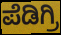
ಪೆಡಿಗ್ರಿ